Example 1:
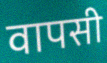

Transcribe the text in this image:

वापसी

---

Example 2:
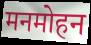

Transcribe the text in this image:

मनमोहन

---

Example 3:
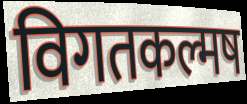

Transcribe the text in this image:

विगतकल्मष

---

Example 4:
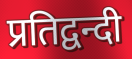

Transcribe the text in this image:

प्रतिद्वन्दी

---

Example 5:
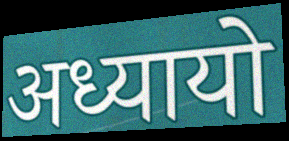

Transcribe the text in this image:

अध्यायो